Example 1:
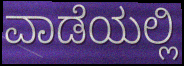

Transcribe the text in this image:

ವಾಡೆಯಲ್ಲಿ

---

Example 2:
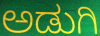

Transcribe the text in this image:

ಅಡುಗಿ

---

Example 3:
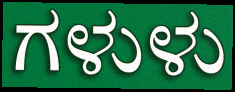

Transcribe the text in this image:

ಗಳುಳು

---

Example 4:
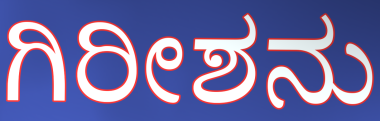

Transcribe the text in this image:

ಗಿರೀಶನು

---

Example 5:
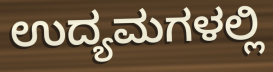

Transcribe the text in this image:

ಉದ್ಯಮಗಳಲ್ಲಿ